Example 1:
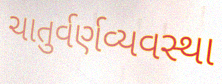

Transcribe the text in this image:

ચાતુર્વર્ણવ્યવસ્થા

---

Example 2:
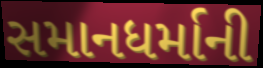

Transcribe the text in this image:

સમાનધર્માની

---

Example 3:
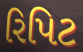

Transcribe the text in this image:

રિપિટ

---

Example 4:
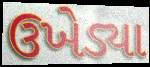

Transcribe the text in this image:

ઉખેડ્યા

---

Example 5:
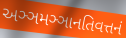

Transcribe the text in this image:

અઞ્ઞમઞ્ઞાનતિવત્તનં